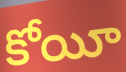
కోయీ